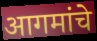
आगमांचे